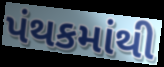
પંથકમાંથી